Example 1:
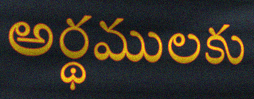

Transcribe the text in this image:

అర్థములకు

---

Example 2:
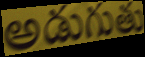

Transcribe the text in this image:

అడుగుతు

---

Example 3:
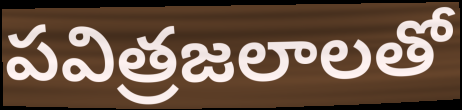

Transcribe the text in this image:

పవిత్రజలాలతో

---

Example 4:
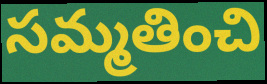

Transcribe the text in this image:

సమ్మతించి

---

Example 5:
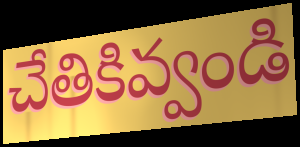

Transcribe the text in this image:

చేతికివ్వండి